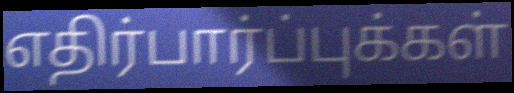
எதிர்பார்ப்புக்கள்